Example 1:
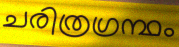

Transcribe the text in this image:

ചരിത്രഗ്രന്ഥം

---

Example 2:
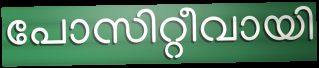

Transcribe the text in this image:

പോസിറ്റീവായി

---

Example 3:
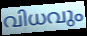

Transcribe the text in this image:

വിധവും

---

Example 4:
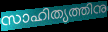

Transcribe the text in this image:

സാഹിത്യത്തിനു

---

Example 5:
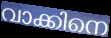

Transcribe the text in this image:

വാക്കിനെ